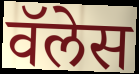
वॅलेस